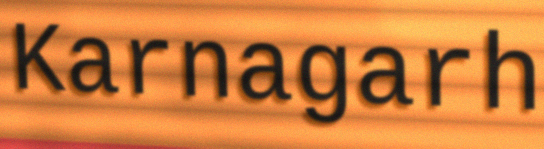
Karnagarh